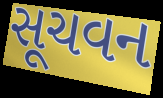
સૂચવન